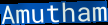
Amutham